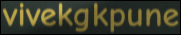
vivekgkpune